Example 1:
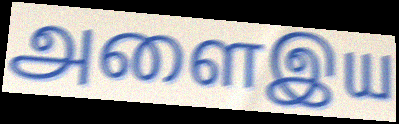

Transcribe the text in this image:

அளைஇய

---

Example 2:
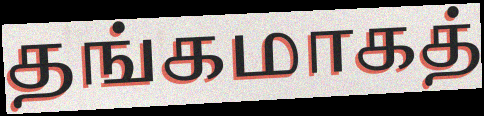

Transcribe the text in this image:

தங்கமாகத்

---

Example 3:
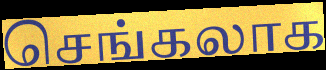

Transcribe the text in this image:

செங்கலாக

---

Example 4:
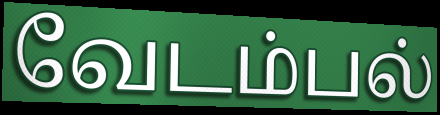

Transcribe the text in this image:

வேடம்பல்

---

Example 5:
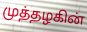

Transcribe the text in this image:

முத்தழகின்